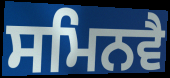
ਸਮਿਨਵੈ